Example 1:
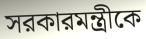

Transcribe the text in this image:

সরকারমন্ত্রীকে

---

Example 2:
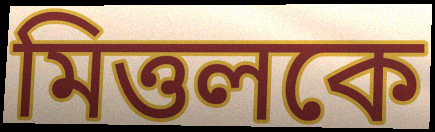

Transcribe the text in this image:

মিত্তলকে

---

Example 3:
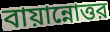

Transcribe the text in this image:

বায়ান্নোত্তর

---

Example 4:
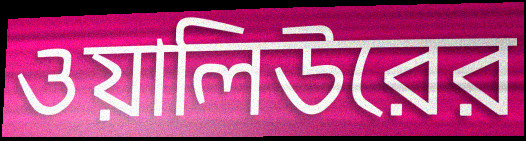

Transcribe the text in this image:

ওয়ালিউরের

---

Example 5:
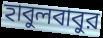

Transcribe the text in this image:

হাবুলবাবুর